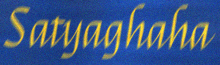
Satyaghaha